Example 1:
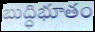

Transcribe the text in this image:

బుద్ధిభూతం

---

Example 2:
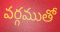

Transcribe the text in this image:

వర్గముతో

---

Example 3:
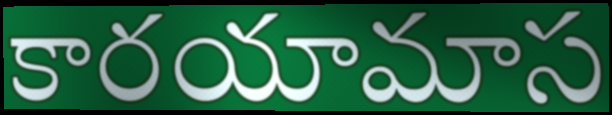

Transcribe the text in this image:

కారయామాస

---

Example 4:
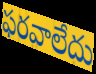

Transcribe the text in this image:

ఫరవాలేదు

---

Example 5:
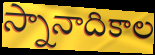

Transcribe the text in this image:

స్నానాదికాల